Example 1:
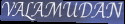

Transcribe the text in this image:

VALAMUDAN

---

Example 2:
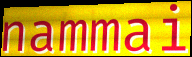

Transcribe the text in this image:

nammai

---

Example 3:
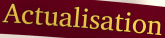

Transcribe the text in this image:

Actualisation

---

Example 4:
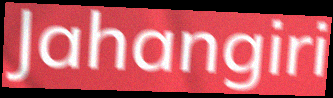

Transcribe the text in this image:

Jahangiri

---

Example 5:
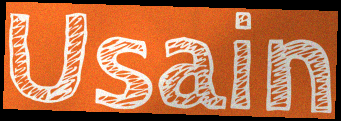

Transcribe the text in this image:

Usain